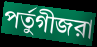
পর্তুগীজরা